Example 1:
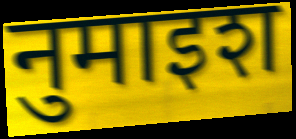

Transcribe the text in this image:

नुमाइश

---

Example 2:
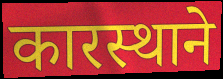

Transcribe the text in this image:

कारस्थाने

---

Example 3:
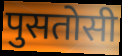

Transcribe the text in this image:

पुसतोसी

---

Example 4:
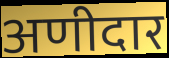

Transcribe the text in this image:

अणीदार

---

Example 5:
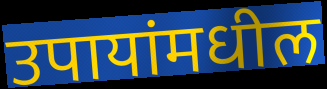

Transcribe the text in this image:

उपायांमधील